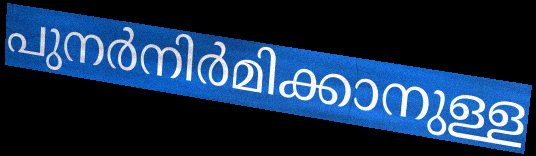
പുനർനിർമിക്കാനുള്ള